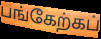
பங்கேற்கப்